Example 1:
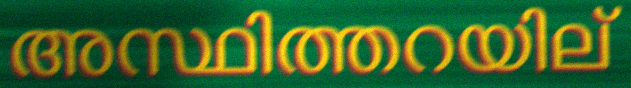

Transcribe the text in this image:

അസ്ഥിത്തറയില്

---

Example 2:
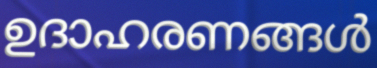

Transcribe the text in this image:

ഉദാഹരണങ്ങൾ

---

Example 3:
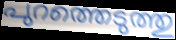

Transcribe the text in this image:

പുറത്തെടുത്തു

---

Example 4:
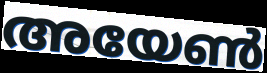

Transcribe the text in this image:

അയേൺ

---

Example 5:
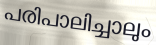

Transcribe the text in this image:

പരിപാലിച്ചാലും